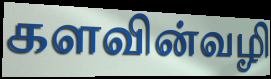
களவின்வழி